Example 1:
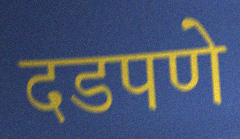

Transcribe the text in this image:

दडपणे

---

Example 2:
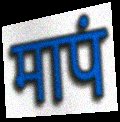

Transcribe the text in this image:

मापं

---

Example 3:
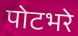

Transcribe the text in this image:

पोटभरे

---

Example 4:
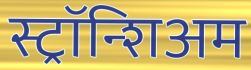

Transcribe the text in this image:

स्ट्रॉन्शिअम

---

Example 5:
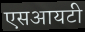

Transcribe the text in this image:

एसआयटी